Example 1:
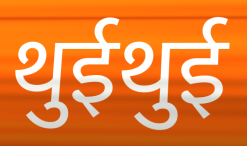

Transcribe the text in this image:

थुईथुई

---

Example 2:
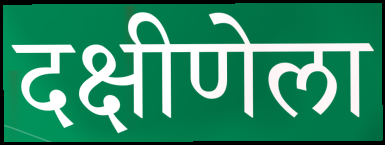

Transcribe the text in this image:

दक्षीणेला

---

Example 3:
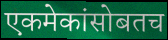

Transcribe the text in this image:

एकमेकांसोबतच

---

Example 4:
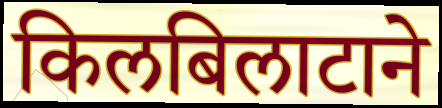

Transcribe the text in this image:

किलबिलाटाने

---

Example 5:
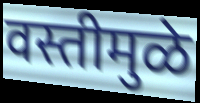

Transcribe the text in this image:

वस्तीमुळे